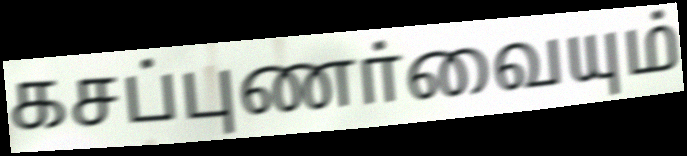
கசப்புணர்வையும்